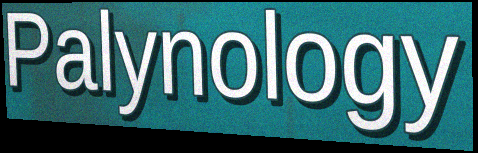
Palynology